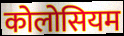
कोलोसियम